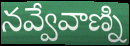
నవ్వేవాణ్ని